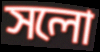
সলো